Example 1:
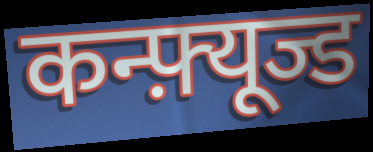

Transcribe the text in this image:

कन्फ़्यूज्ड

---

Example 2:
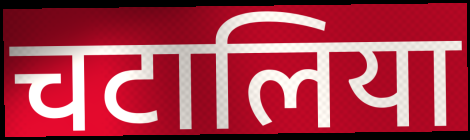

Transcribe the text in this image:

चटालिया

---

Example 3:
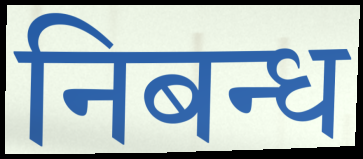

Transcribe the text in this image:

निबन्‍ध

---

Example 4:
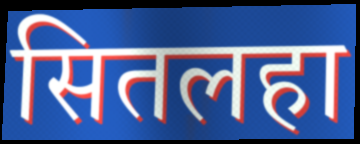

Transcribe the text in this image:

सितलहा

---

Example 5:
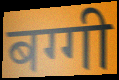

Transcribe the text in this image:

बग्‍गी